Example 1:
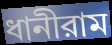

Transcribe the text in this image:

ধানীরাম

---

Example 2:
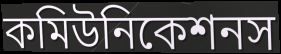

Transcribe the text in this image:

কমিউনিকেশনস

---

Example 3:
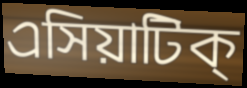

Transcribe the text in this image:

এসিয়াটিক্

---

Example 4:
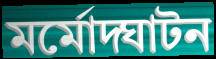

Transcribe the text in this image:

মর্মোদ্ঘাটন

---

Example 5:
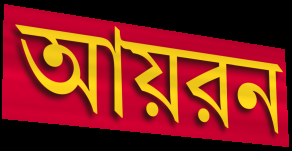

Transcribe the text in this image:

আয়রন